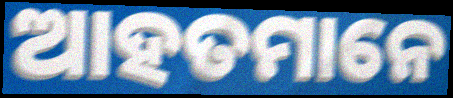
ଆହତମାନେ